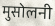
मुसोलनी